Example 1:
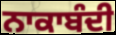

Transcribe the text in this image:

ਨਾਕਾਬੰਦੀ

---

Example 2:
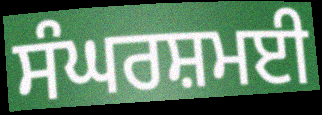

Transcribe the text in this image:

ਸੰਘਰਸ਼ਮਈ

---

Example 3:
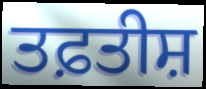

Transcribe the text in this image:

ਤਫ਼ਤੀਸ਼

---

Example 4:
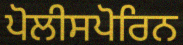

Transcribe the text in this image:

ਪੋਲੀਸਪੋਰਿਨ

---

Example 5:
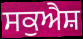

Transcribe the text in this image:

ਸਕੁਐਸ਼